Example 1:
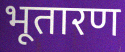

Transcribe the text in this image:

भूतारण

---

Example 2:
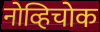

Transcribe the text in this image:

नोव्हिचोक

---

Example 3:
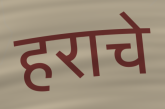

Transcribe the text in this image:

हराचे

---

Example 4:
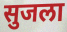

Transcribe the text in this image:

सुजला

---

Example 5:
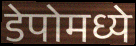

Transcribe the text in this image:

डेपोमध्ये